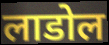
लाडोल